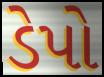
ડેપો